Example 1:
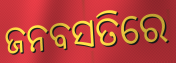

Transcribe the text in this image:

ଜନବସତିରେ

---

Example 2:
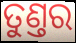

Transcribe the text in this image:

ତୁଣ୍ତର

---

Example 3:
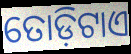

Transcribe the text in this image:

ତୋଡ଼ିଟାଏ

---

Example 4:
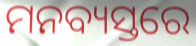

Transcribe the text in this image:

ମନବ୍ୟସ୍ତରେ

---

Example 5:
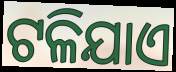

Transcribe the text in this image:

ଟଳିଯାଏ